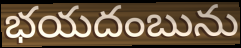
భయదంబును